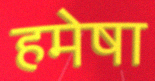
हमेषा